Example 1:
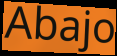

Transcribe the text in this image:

Abajo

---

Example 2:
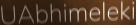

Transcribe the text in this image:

UAbhimeleki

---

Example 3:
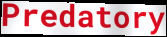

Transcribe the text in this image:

Predatory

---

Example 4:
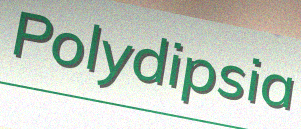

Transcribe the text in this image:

Polydipsia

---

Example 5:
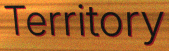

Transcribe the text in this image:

Territory